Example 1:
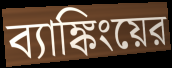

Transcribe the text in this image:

ব্যাঙ্কিংয়ের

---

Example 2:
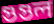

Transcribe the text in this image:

গুগুল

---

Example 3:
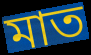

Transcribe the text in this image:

মাত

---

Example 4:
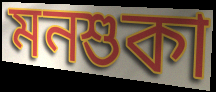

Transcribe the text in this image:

মনশুকা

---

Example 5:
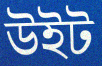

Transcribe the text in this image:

উইট